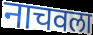
नाचवला